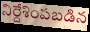
నిర్దేశింపబడిన